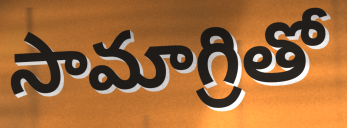
సామాగ్రితో